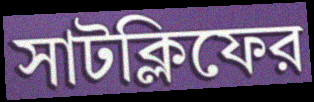
সাটক্লিফের